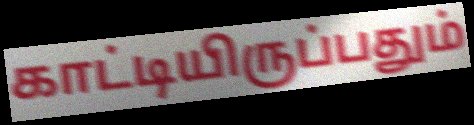
காட்டியிருப்பதும்